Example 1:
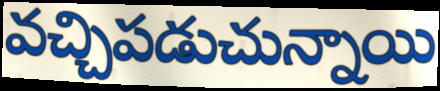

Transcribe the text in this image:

వచ్చిపడుచున్నాయి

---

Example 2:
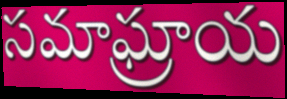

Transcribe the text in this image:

సమాఘ్రాయ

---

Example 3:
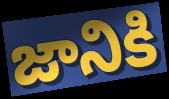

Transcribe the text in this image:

జానికి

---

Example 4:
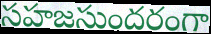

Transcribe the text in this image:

సహజసుందరంగా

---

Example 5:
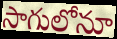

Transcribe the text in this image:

సాగులోనూ